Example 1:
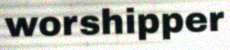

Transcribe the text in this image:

worshipper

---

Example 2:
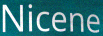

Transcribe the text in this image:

Nicene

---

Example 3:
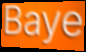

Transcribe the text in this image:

Baye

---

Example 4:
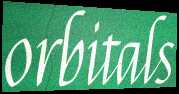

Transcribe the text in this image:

orbitals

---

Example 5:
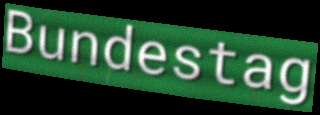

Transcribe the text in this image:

Bundestag